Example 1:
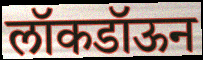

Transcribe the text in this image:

लॉकडॉऊन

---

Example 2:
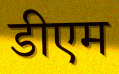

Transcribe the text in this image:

डीएम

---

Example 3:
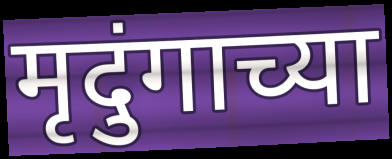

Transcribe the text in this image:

मृदुंगाच्या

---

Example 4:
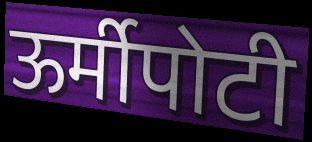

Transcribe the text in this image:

ऊर्मीपोटी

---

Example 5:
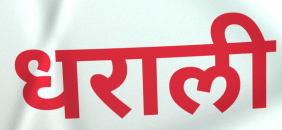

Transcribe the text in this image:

धराली